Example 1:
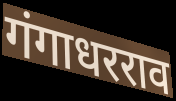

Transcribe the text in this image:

गंगाधरराव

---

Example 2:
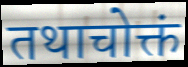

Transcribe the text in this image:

तथाचोक्तं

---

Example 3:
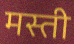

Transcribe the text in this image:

मस्‍ती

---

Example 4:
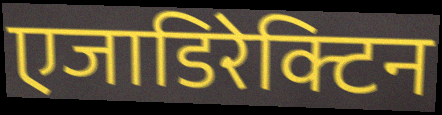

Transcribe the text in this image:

एजाडिरेक्टिन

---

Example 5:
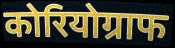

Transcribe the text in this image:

कोरियोग्राफ